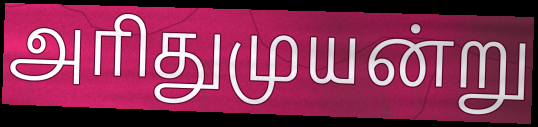
அரிதுமுயன்று